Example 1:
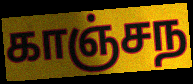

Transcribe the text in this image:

காஞ்சந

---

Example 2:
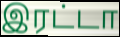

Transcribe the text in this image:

இரட்டா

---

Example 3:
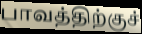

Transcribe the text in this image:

பாவத்திற்குச்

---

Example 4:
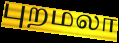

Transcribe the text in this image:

புறமலா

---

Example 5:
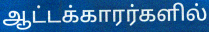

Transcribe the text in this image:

ஆட்டக்காரர்களில்